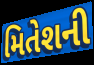
મિતેશની